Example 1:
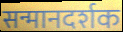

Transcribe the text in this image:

सन्मानदर्शक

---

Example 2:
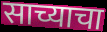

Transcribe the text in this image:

साच्याचा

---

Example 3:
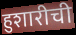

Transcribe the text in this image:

हुशारीची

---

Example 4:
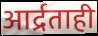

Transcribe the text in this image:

आर्द्रताही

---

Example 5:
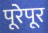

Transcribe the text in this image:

पूरेपूर